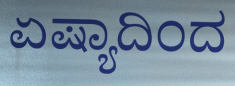
ಏಷ್ಯಾದಿಂದ